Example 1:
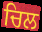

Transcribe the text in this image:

ਚਿਲ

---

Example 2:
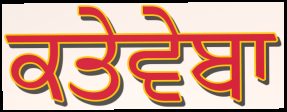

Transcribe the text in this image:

ਕਤੇਵੇਬਾ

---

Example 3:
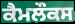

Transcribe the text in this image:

ਕੈਮਲੌਕਸ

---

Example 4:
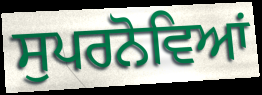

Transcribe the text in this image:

ਸੁਪਰਨੋਵਿਆਂ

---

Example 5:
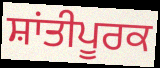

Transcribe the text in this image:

ਸ਼ਾਂਤੀਪੂਰਕ